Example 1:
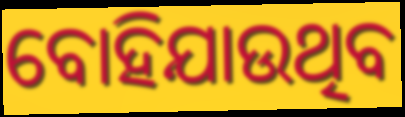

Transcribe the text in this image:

ବୋହିଯାଉଥିବ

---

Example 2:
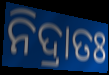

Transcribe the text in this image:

ନିଦ୍ରାତଃ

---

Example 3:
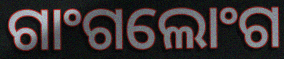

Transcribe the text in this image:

ଗାଂଗଲୋଂଗ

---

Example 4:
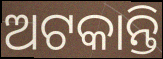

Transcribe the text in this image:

ଅଟକାନ୍ତି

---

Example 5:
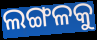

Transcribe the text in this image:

ଲଙ୍ଗଳକୁ